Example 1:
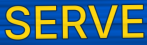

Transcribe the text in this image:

SERVE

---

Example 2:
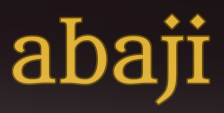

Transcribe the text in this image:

abaji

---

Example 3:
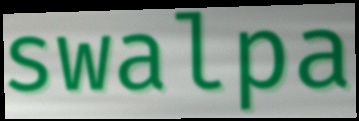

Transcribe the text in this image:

swalpa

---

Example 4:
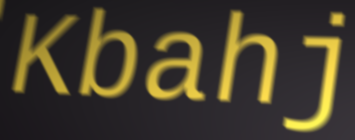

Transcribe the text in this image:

Kbahj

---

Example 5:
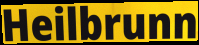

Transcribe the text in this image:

Heilbrunn